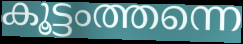
കൂട്ടംത്തന്നെ